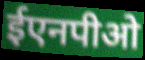
ईएनपीओ